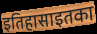
इतिहासाइतका